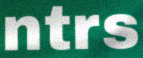
ntrs